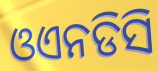
ଓଏନଡିସି